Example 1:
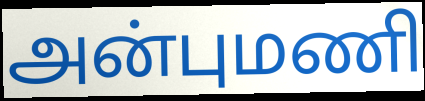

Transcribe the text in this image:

அன்புமணி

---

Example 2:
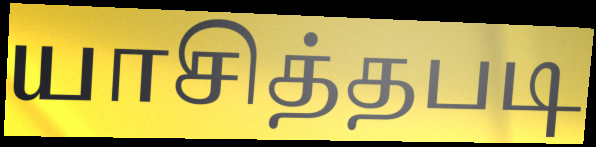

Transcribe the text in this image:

யாசித்தபடி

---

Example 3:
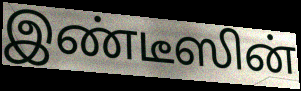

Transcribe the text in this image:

இண்டீஸின்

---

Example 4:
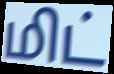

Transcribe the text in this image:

மிட்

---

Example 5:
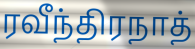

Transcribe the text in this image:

ரவீந்திரநாத்